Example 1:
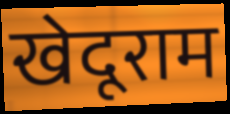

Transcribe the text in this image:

खेदूराम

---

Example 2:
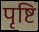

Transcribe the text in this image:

पृष्टि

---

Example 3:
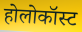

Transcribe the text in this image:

होलोकॉस्ट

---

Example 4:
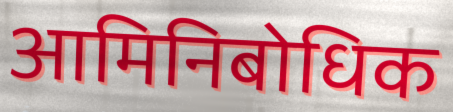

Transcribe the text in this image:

आमिनिबोधिक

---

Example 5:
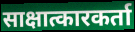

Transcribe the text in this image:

साक्षात्कारकर्ता